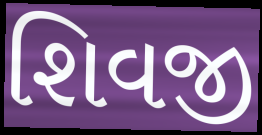
શિવજી